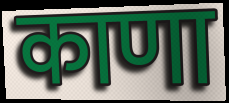
काणा